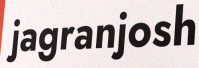
jagranjosh